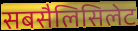
सबसैलिसिलेट